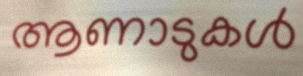
ആണാടുകൾ